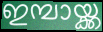
ഇമ്പായ്ക്ക